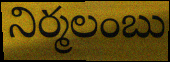
నిర్మలంబు